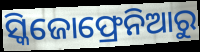
ସ୍କିଜୋଫ୍ରେନିଆରୁ